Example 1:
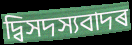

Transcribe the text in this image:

দ্বিসদস্যবাদৰ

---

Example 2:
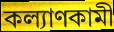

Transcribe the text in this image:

কল্যাণকামী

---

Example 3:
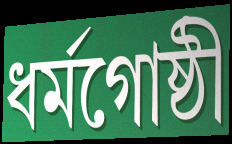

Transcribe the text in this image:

ধৰ্মগোষ্ঠী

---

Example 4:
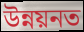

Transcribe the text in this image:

উন্নয়নত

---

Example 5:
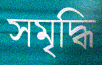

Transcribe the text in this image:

সমৃদ্ধি